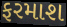
ફરમાશ